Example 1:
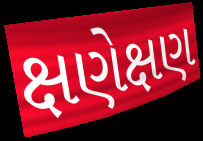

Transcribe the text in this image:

ક્ષણેક્ષણ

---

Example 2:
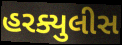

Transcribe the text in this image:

હરક્યુલીસ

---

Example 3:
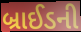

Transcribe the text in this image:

બ્રાઈડની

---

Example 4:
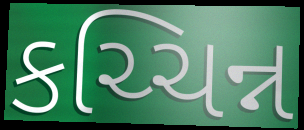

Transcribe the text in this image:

કચ્ચિન્ન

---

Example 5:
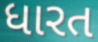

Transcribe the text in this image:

ધારત